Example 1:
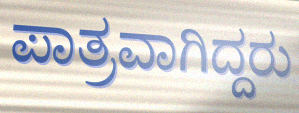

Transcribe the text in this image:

ಪಾತ್ರವಾಗಿದ್ದರು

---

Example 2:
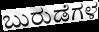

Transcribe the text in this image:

ಬುರುಡೆಗಳ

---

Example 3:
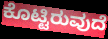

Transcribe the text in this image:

ಕೊಟ್ಟಿರುವುದೆ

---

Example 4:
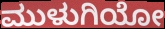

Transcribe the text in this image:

ಮುಳುಗಿಯೋ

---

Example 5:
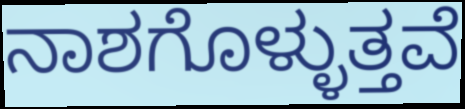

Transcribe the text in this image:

ನಾಶಗೊಳ್ಳುತ್ತವೆ